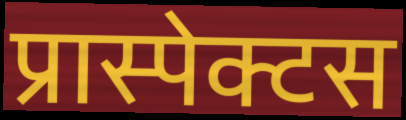
प्रास्पेक्टस